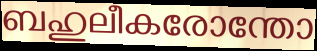
ബഹുലീകരോന്തോ